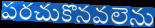
పరచుకొనవలెను